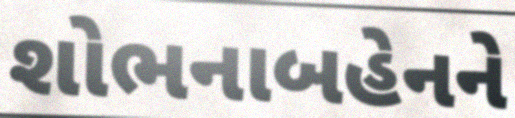
શોભનાબહેનને